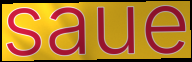
saue